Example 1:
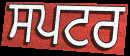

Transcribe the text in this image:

ਸਪਟਰ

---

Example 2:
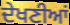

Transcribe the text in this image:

ਦੇਖਣੀਆਂ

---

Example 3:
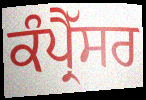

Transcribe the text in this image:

ਕੰਪ੍ਰੈੱਸਰ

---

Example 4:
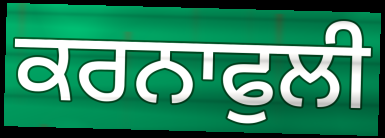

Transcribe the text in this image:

ਕਰਨਾਫੁਲੀ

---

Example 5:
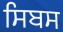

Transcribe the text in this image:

ਸਿਬਸ